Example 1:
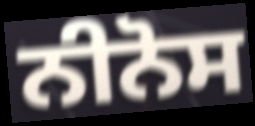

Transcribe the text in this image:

ਨੀਨੋਸ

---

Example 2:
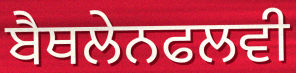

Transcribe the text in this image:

ਬੈਥਲੇਨਫਲਵੀ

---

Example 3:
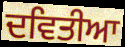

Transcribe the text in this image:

ਦਵਿਤੀਆ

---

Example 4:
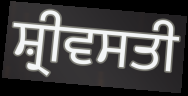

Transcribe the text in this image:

ਸ਼੍ਰੀਵਸਤੀ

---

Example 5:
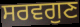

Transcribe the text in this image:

ਸਰਵਗੁਣ